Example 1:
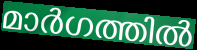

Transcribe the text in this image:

മാർഗത്തിൽ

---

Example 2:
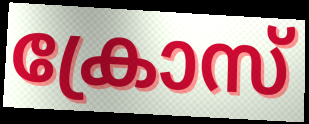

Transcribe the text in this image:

ക്രോസ്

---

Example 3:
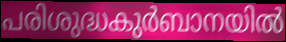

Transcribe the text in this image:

പരിശുദ്ധകുർബാനയിൽ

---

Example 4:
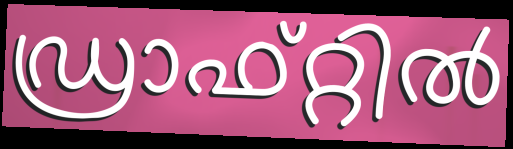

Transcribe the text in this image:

ഡ്രാഫ്റ്റിൽ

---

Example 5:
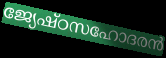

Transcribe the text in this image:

ജ്യേഷ്ഠസഹോദരൻ